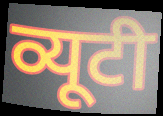
व्यूटी